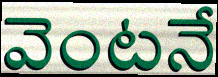
వెంటనే